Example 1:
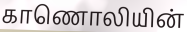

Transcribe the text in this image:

காணொலியின்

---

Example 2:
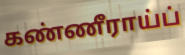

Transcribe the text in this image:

கண்ணீராய்ப்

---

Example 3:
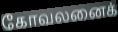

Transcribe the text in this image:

கோவலனைக்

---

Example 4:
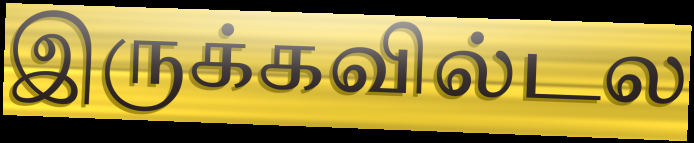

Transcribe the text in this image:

இருக்கவில்டல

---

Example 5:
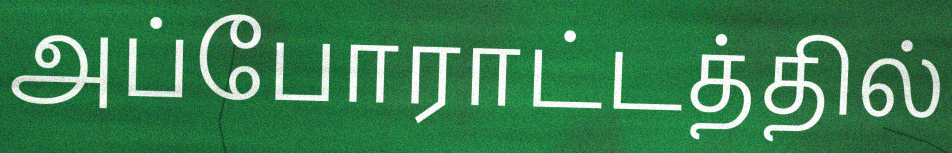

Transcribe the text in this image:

அப்போராட்டத்தில்